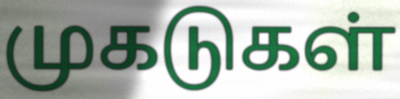
முகடுகள்